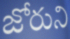
జోరుని